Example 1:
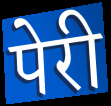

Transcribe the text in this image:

पेरी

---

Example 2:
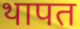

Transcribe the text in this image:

थापत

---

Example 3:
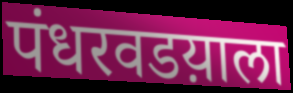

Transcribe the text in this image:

पंधरवडय़ाला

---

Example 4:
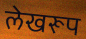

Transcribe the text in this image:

लेखरूप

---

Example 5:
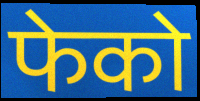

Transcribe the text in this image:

फेको